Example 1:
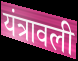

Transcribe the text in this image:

यंत्रावली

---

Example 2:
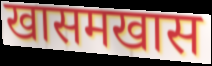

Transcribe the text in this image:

खासमखास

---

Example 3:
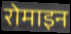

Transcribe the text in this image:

रोमाइन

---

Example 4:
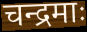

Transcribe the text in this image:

चन्द्रमाः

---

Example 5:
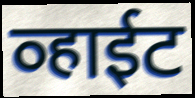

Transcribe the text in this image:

व्हाईट